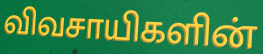
விவசாயிகளின்